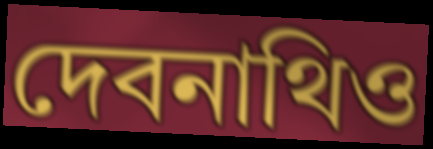
দেবনাথিও